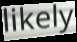
likely